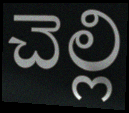
చెల్లి